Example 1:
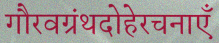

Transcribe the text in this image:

गौरवग्रंथदोहेरचनाएँ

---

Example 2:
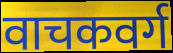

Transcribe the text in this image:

वाचकवर्ग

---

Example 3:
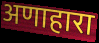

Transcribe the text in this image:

अणाहारा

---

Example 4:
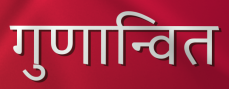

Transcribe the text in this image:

गुणान्वित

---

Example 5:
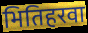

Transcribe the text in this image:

भितिहरवा